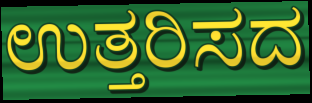
ಉತ್ತರಿಸದ